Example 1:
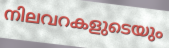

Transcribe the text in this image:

നിലവറകളുടെയും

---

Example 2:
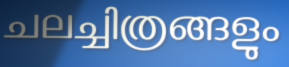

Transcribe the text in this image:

ചലച്ചിത്രങ്ങളും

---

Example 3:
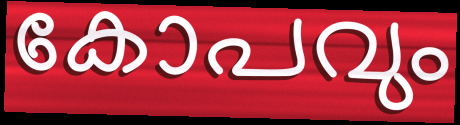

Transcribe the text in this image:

കോപവും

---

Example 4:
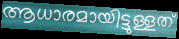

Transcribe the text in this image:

ആധാരമായിട്ടുള്ളത്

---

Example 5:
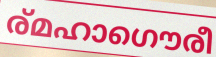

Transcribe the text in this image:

ര്മഹാഗൌരീ